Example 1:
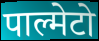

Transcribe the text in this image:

पाल्मेटो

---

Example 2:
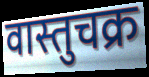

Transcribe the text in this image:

वास्तुचक्र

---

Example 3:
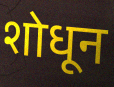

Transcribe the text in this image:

शोधून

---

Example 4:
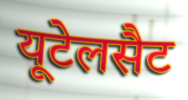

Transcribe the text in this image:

यूटेलसैट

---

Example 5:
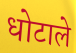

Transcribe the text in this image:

धोटाले